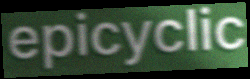
epicyclic